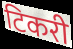
टिकरी